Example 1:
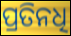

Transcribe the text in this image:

ପ୍ରତିନଧି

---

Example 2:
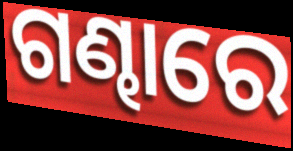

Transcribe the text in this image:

ଗଣ୍ଢାରେ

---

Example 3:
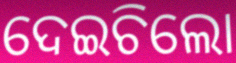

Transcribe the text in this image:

ଦେଇଚିଲୋ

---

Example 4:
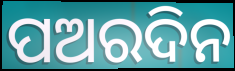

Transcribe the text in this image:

ପଅରଦିନ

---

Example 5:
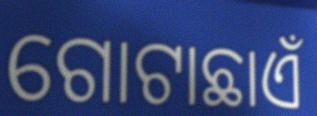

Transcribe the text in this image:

ଗୋଟାଛାଏଁ